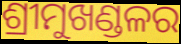
ଶ୍ରୀମୁଖଣ୍ଡଳର